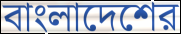
বাংলাদেশের